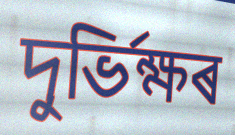
দুৰ্ভিক্ষৰ